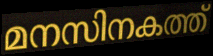
മനസിനകത്ത്